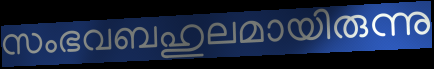
സംഭവബഹുലമായിരുന്നു